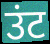
उंट